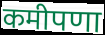
कमीपणा